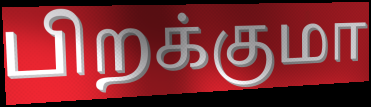
பிறக்குமா